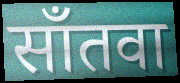
साँतवा